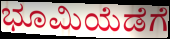
ಭೂಮಿಯೆಡೆಗೆ